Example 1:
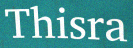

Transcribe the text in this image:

Thisra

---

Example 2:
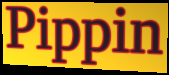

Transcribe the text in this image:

Pippin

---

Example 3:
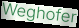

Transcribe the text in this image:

Weghofer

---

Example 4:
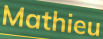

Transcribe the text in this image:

Mathieu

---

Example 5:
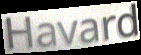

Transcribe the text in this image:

Havard